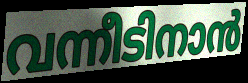
വന്നീടിനാൻ